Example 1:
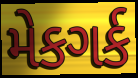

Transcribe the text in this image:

મેકગર્ક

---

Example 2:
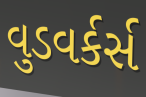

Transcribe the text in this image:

વુડવર્કર્સ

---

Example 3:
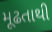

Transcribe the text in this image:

મૂઢતાથી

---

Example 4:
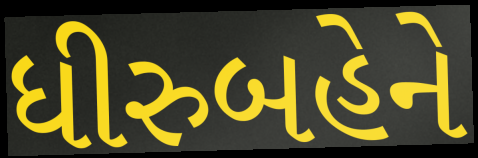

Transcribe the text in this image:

ધીરુબહેને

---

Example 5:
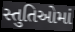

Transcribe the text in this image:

સ્તુતિઓમાં